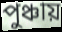
পুঞ্চায়